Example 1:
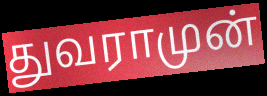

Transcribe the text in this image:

துவராமுன்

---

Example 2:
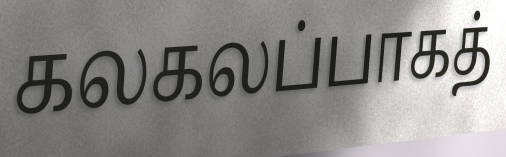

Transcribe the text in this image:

கலகலப்பாகத்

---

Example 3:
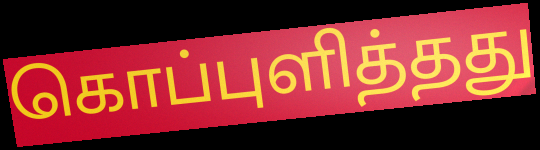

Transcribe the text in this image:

கொப்புளித்தது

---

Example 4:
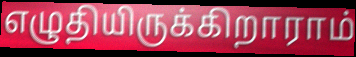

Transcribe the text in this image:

எழுதியிருக்கிறாராம்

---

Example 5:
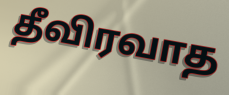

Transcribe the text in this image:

தீவிரவாத